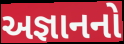
અજ્ઞાનનો